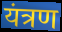
यंत्रण